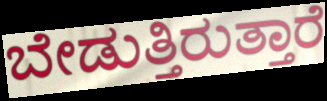
ಬೇಡುತ್ತಿರುತ್ತಾರೆ